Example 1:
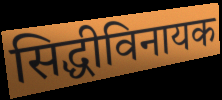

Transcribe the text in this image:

सिद्धीविनायक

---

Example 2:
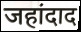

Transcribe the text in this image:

जहांदाद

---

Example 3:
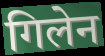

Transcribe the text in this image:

गिलेन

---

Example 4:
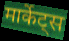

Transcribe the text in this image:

मार्केट्स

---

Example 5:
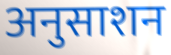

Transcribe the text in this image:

अनुसाशन